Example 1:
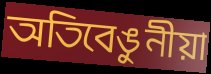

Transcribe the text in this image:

অতিবেঙুনীয়া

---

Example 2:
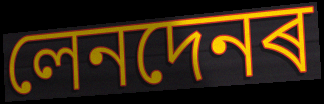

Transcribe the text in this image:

লেনদেনৰ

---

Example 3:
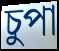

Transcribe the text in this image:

চুপা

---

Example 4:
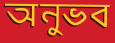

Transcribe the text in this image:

অনুভব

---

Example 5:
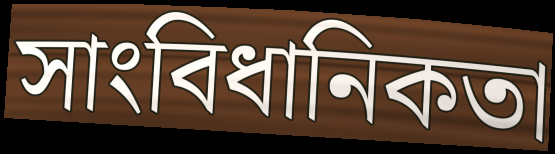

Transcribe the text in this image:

সাংবিধানিকতা